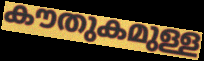
കൗതുകമുള്ള